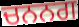
ਚਨਨਗ